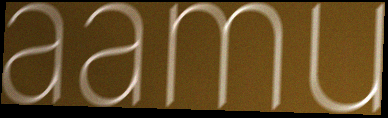
aamu